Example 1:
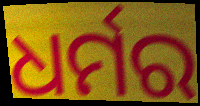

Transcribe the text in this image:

ଧର୍ମର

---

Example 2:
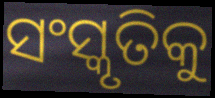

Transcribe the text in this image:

ସଂସ୍କୃତିକୁ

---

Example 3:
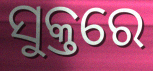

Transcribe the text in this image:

ସୁକ୍ତରେ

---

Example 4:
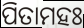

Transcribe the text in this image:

ପିତାମହଃ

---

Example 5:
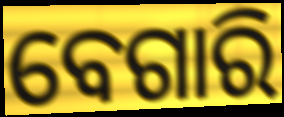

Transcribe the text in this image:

ବେଗାରି